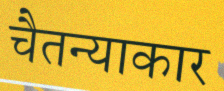
चैतन्याकार